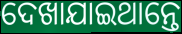
ଦେଖାଯାଇଥାନ୍ତେ